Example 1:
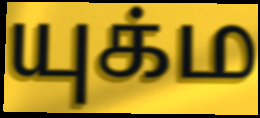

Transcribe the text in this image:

யுக்ம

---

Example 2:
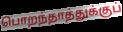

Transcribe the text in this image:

பொறந்தாத்துக்குப்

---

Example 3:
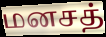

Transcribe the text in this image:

மனசத்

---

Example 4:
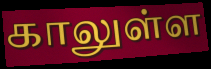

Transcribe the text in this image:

காலுள்ள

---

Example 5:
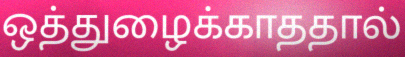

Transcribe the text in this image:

ஒத்துழைக்காததால்